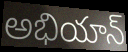
అభియాన్